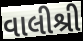
વાલીશ્રી